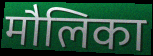
मौलिका